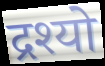
द्रश्यो